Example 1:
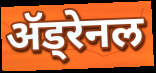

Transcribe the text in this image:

ॲड्रेनल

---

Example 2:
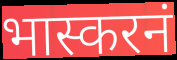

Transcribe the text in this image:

भास्करनं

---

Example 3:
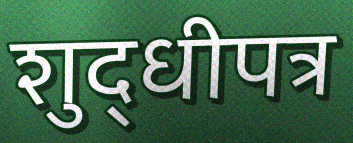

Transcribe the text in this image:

शुद्धीपत्र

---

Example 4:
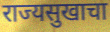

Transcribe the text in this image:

राज्यसुखाचा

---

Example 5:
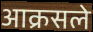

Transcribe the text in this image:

आक्रसले